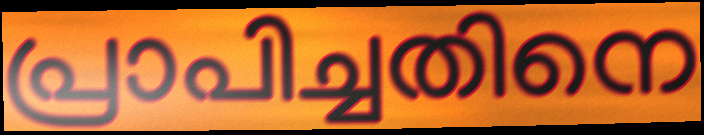
പ്രാപിച്ചതിനെ